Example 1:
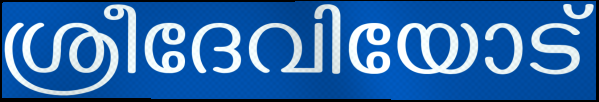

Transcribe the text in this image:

ശ്രീദേവിയോട്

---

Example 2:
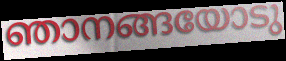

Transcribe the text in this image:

ഞാനങ്ങയോടു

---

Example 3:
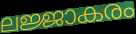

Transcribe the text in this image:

ലജ്ജാകരം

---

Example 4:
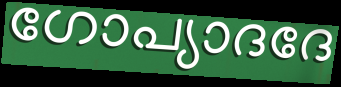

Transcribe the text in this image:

ഗോപ്യാദദേ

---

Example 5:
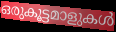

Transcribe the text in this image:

ഒരുകൂട്ടമാളുകൾ